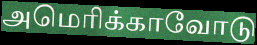
அமெரிக்காவோடு